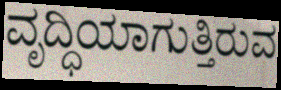
ವೃದ್ಧಿಯಾಗುತ್ತಿರುವ